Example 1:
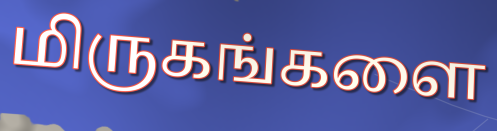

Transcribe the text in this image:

மிருகங்களை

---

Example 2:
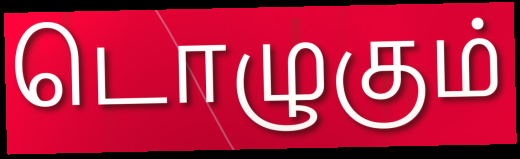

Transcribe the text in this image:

டொழுகும்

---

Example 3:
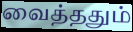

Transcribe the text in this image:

வைத்ததும்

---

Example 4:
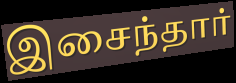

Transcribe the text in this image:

இசைந்தார்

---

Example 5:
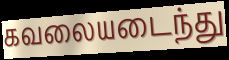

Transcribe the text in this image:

கவலையடைந்து